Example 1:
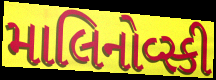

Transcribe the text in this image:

માલિનોવ્સ્કી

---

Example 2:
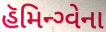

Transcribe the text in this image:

હૅમિન્ગ્વેના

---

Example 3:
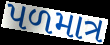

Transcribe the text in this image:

પળમાત્ર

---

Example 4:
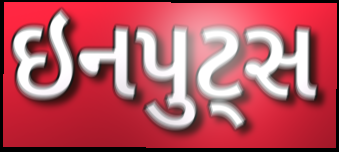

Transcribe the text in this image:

ઇનપુટ્સ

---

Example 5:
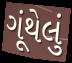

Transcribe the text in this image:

ગૂંથેલું